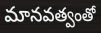
మానవత్వంతో